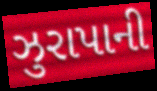
ઝુરાપાની